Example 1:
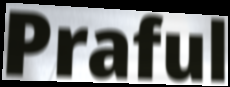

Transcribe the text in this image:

Praful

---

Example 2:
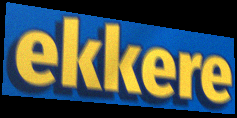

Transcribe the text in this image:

ekkere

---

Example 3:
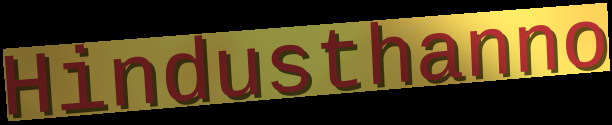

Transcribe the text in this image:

Hindusthanno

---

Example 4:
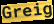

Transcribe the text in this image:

Greig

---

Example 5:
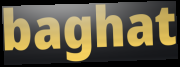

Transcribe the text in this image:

baghat